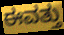
ಈವತ್ತು